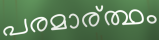
പരമാര്ത്ഥം